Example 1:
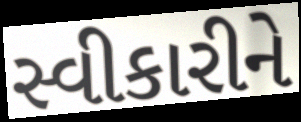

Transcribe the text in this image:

સ્વીકારીને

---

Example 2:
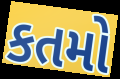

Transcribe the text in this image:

કતમો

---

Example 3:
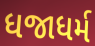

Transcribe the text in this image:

ધજાધર્મ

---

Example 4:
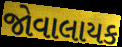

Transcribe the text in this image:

જોવાલાયક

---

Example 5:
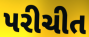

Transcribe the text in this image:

પરીચીત